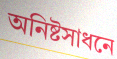
অনিষ্টসাধনে